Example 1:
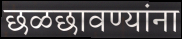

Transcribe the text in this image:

छळछावण्यांना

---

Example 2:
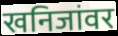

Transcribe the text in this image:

खनिजांवर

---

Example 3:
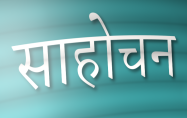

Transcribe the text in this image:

साहोचन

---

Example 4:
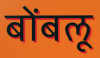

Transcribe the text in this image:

बोंबलू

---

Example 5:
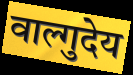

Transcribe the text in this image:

वाल्गुदेय